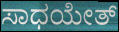
ಸಾಧಯೇತ್